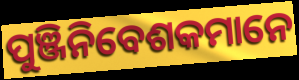
ପୁଞ୍ଜିନିବେଶକମାନେ